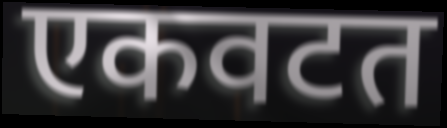
एकवटत